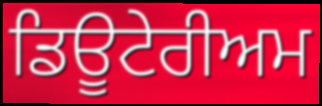
ਡਿਊਟੇਰੀਅਮ